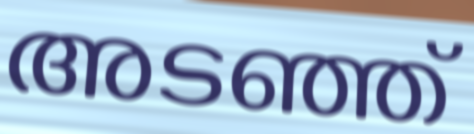
അടഞ്ഞ്